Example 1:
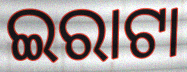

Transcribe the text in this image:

ଇରାଟା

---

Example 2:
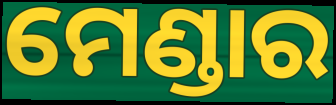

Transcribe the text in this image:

ମେଣ୍ଡାର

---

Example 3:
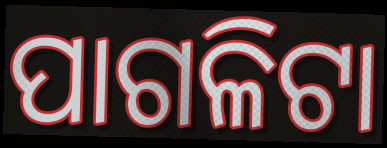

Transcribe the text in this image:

ପାଗଳିଟା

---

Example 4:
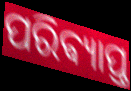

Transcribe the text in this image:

ପରିଵ୍ୟାପ୍ତ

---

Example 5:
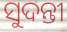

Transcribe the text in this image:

ସୁଦନ୍ତୀ